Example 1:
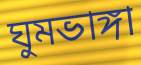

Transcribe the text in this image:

ঘুমভাঙ্গা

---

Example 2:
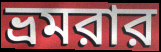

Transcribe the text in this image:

ভ্রমরার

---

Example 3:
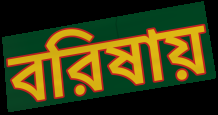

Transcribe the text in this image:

বরিষায়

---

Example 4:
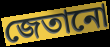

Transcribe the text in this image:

জেতানো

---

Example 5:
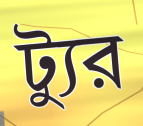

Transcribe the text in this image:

ট্যুর